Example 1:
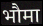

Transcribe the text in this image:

भौमा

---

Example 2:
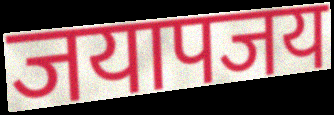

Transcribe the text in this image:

जयापजय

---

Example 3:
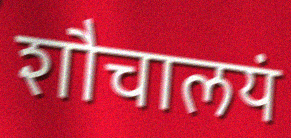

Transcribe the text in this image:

शौचालयं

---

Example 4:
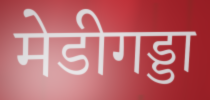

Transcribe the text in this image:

मेडीगड्डा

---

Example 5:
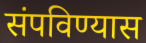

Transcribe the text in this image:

संपविण्यास